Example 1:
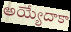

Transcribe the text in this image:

అయ్యేదాకా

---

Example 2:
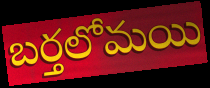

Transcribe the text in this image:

బర్తలోమయి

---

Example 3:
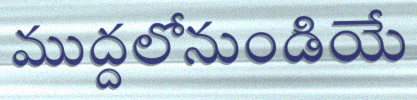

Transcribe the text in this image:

ముద్దలోనుండియే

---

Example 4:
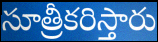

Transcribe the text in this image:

సూత్రీకరిస్తారు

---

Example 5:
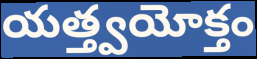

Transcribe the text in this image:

యత్త్వయోక్తం